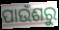
ପାଉଁଶରୁ